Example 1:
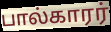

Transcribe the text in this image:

பால்காரர்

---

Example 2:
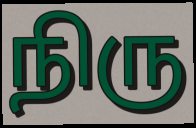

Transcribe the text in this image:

நிரு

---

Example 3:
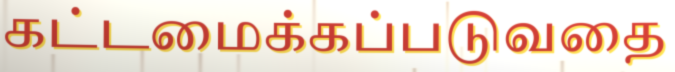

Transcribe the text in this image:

கட்டமைக்கப்படுவதை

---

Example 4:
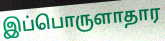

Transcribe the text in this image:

இப்பொருளாதார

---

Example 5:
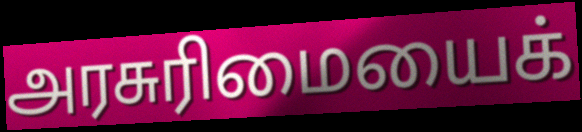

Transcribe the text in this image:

அரசுரிமையைக்